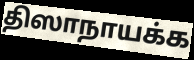
திஸாநாயக்க